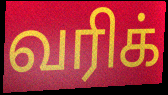
வரிக்